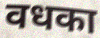
वधका